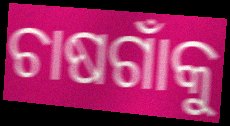
ଚାଷଗାଁକୁ